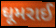
ઘૂમરાઈ